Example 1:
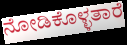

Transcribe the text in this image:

ನೋಡಿಕೊಳ್ಳತಾರೆ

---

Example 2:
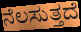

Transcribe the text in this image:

ನೆಲಸುತ್ತದೆ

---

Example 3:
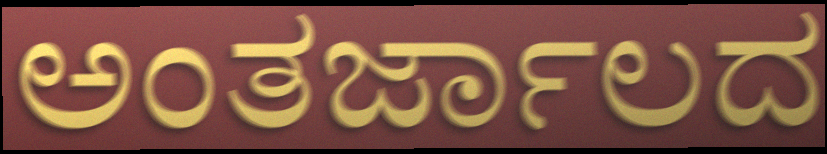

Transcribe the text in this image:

ಅಂತರ್ಜಾಲದ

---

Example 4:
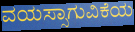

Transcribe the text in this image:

ವಯಸ್ಸಾಗುವಿಕೆಯ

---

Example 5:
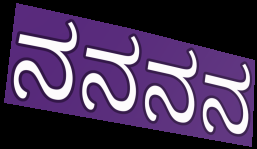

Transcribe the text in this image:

ನನನನ